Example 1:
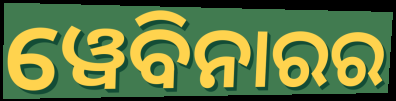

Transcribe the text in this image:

ୱେବିନାରର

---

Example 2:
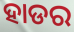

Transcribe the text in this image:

ହାଡର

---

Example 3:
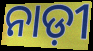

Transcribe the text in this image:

ନାଡ଼ୀ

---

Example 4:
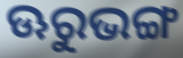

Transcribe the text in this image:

ଊରୁଭଙ୍ଗ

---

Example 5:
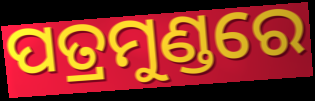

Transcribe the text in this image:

ପତ୍ରମୁଣ୍ଡରେ